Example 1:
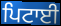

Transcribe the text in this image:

ਪਿਟਾਈ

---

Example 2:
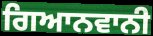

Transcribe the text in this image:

ਗਿਆਨਵਾਨੀ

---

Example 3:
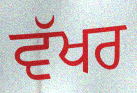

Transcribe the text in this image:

ਵੱਖਰ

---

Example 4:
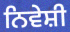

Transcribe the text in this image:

ਨਿਵੇਸ਼ੀ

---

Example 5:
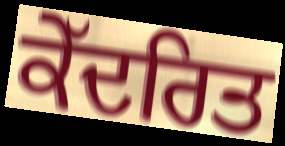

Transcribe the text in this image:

ਕੇੱਦਰਿਤ